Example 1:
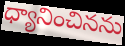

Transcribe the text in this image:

ధ్యానించినను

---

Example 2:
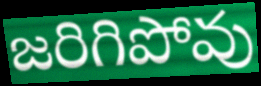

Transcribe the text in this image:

జరిగిపోవు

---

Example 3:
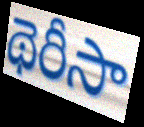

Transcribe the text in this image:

థెరీసా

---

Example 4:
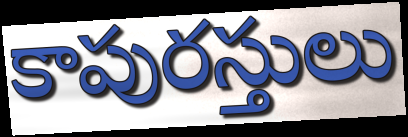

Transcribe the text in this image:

కాపురస్తులు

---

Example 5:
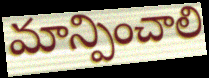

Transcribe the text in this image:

మాన్పించాలి